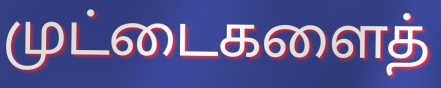
முட்டைகளைத்